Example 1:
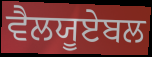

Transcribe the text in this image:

ਵੈਲਯੂਏਬਲ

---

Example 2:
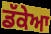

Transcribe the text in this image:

ਡੱਕੇਆ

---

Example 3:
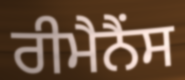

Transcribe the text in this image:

ਰੀਮੈਨੈਂਸ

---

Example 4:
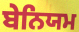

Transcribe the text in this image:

ਬੇਨਿਯਮ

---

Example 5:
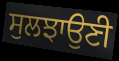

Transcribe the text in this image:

ਸੁਲਝਾਉਣੀ